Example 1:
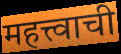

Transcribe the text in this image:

महत्त्वाची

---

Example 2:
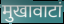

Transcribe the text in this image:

मुखावाटां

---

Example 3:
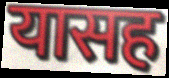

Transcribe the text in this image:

यासह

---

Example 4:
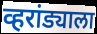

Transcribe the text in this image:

व्हरांड्याला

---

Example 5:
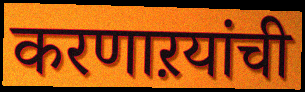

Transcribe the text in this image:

करणाऱयांची